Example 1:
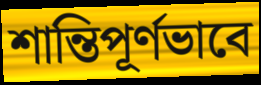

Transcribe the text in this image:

শান্তিপূর্ণভাবে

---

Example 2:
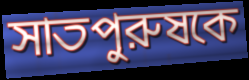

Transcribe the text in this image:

সাতপুরুষকে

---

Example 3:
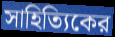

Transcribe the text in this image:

সাহিত্যিকের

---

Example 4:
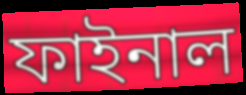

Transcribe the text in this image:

ফাইনাল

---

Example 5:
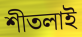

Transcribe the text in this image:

শীতলাই